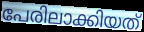
പേരിലാക്കിയത്